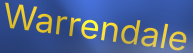
Warrendale